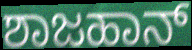
ಶಾಜಹಾನ್